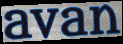
avan